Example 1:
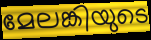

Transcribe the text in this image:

മേലങ്കിയുടെ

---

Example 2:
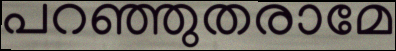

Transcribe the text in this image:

പറഞ്ഞുതരാമേ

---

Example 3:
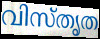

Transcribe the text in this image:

വിസ്തൃത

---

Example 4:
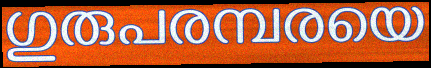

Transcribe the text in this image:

ഗുരുപരമ്പരയെ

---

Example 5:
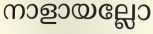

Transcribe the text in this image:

നാളായല്ലോ